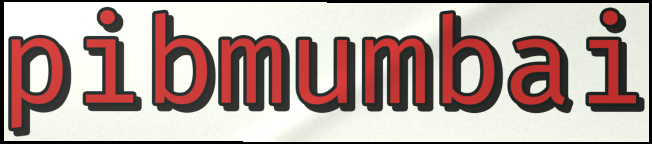
pibmumbai